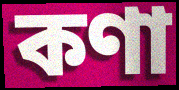
কণা